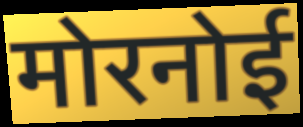
मोरनोई